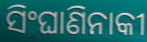
ସିଂଘାଣିନାକୀ